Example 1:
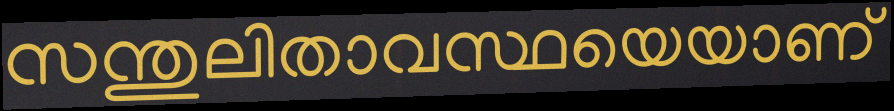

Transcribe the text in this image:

സന്തുലിതാവസ്ഥയെയാണ്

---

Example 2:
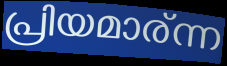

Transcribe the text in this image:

പ്രിയമാര്ന്ന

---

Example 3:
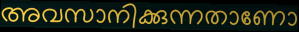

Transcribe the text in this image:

അവസാനിക്കുന്നതാണോ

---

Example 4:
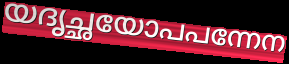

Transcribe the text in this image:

യദൃച്ഛയോപപന്നേന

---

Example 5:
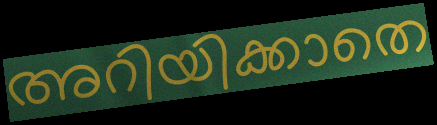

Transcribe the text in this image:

അറിയിക്കാതെ